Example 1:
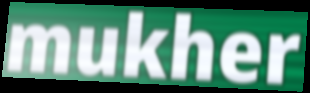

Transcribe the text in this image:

mukher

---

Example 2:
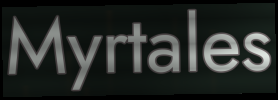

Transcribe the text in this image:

Myrtales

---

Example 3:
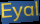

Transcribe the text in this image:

Eyal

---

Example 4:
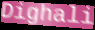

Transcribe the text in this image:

Dighali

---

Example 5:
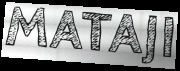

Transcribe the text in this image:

MATAJI